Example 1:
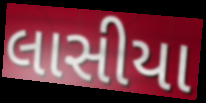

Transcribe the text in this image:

લાસીયા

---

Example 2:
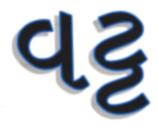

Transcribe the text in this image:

વટ્ટ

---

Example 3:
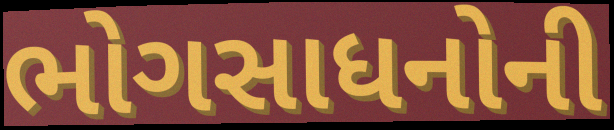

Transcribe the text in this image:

ભોગસાધનોની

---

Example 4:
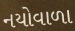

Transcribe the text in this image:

નયોવાળા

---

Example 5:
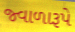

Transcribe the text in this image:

જ્વાળારૂપે